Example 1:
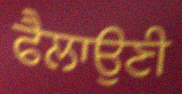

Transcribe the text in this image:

ਫੈਲਾਉਣੀ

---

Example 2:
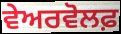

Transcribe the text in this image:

ਵੇਅਰਵੋਲਫ਼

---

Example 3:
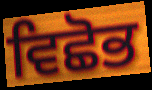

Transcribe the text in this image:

ਵਿਛੋਭ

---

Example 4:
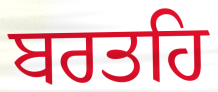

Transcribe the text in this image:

ਬਰਤਹਿ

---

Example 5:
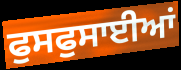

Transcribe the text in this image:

ਫੁਸਫੁਸਾਈਆਂ